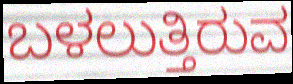
ಬಳಲುತ್ತಿರುವ